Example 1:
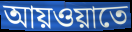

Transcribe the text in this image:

আয়ওয়াতে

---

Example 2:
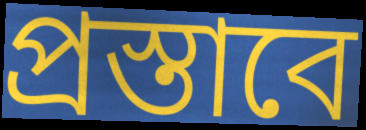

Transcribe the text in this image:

প্রস্তাবে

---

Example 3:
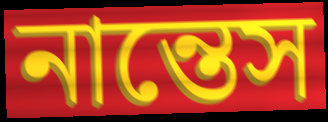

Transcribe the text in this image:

নান্তেস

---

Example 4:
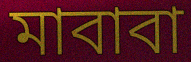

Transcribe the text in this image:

মাবাবা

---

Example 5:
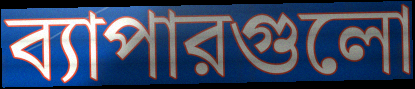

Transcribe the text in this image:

ব্যাপারগুলো